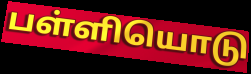
பள்ளியொடு